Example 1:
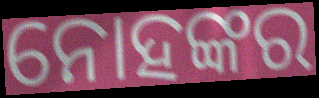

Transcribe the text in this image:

ନୋହଙ୍କର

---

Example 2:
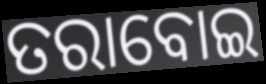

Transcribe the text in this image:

ତରାବୋଇ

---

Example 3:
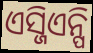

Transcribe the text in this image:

ଏସ୍ଜିଏନ୍ପି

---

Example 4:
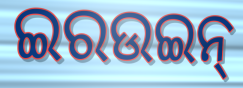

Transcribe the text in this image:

ଇରଉଇନ୍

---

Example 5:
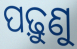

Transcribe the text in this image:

ପଢ଼ୁଣୁ